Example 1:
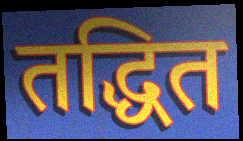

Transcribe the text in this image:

तद्धित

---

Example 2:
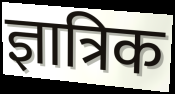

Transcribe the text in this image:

ज्ञात्रिक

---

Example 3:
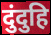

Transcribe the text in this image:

दुंदुहि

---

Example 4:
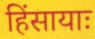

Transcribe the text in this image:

हिंसायाः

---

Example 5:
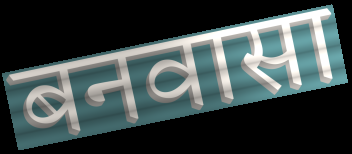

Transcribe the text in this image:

बनवासा